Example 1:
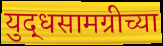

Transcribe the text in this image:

युद्धसामग्रीच्या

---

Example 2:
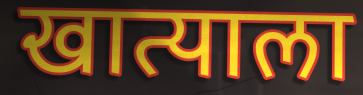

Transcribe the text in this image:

खात्याला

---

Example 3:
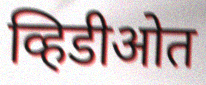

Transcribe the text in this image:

व्हिडीओत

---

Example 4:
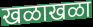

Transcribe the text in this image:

खळाखळा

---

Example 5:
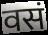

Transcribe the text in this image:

वसं